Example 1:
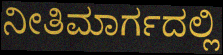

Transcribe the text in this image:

ನೀತಿಮಾರ್ಗದಲ್ಲಿ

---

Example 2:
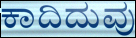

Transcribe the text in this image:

ಕಾದಿದುವು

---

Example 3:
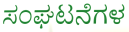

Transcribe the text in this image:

ಸಂಘಟನೆಗಳ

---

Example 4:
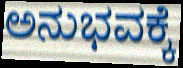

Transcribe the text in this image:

ಅನುಭವಕ್ಕೆ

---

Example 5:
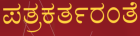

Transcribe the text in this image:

ಪತ್ರಕರ್ತರಂತೆ